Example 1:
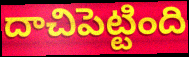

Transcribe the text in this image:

దాచిపెట్టింది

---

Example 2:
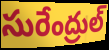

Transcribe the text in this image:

సురేంద్రుల్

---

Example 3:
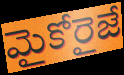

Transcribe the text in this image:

మైకోరైజే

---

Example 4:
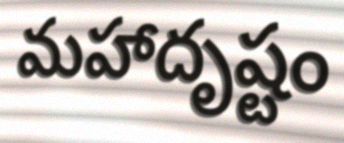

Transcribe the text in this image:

మహాదృష్టం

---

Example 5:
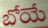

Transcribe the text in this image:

బోయే